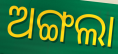
ଅଙ୍ଗଲା